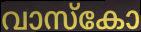
വാസ്കോ